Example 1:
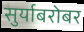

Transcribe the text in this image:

सुर्याबरोबर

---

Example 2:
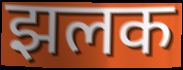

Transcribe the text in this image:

झलक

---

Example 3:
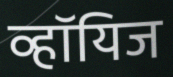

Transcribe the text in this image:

व्हॉयिज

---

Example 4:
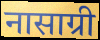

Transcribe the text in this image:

नासाग्री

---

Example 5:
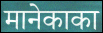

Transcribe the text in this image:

मानेकाका